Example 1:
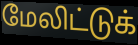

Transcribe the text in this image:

மேலிட்டுக்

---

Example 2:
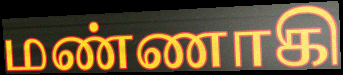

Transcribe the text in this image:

மண்ணாகி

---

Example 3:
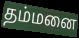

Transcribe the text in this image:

தம்மனை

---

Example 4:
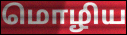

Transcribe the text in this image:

மொழிய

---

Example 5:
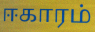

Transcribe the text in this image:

ஈகாரம்